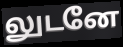
லுடனே